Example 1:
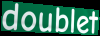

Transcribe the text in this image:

doublet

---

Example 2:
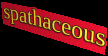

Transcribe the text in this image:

spathaceous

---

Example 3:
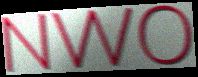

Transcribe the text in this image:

NWO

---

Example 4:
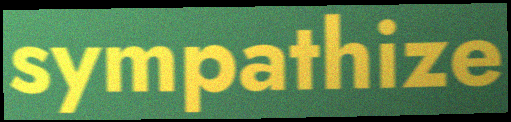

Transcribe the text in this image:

sympathize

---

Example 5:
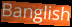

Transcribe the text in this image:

Banglish